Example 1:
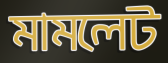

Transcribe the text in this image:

মামলেট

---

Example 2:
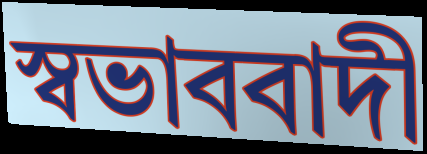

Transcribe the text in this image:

স্বভাববাদী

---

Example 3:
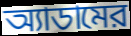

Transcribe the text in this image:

অ্যাডামের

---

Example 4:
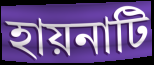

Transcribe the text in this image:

হায়নাটি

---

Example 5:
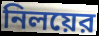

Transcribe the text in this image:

নিলয়ের